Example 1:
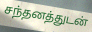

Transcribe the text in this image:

சந்தனத்துடன்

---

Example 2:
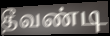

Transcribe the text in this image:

தீவண்டி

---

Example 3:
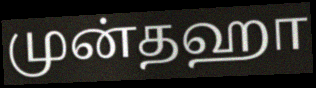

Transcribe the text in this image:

முன்தஹா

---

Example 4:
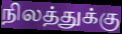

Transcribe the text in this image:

நிலத்துக்கு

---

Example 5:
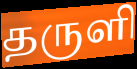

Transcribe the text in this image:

தருளி